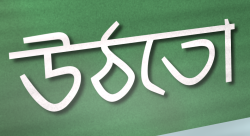
উঠতো